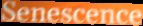
Senescence